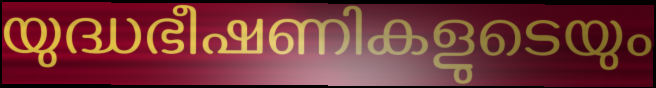
യുദ്ധഭീഷണികളുടെയും